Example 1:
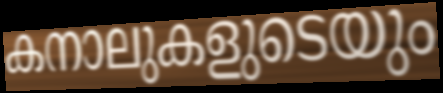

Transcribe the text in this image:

കനാലുകളുടെയും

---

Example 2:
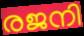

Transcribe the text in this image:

രജനി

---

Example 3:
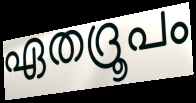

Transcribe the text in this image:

ഏതദ്രൂപം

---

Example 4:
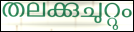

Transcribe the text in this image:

തലക്കുചുറ്റും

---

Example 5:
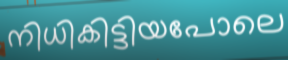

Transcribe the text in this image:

നിധികിട്ടിയപോലെ